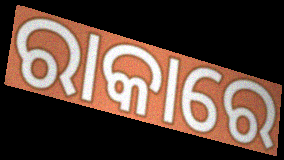
ରାକାରେ